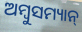
ଅମ୍ବୁସମ୍ୟାନ୍